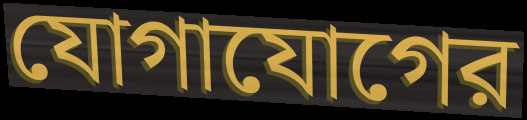
যোগাযোগের